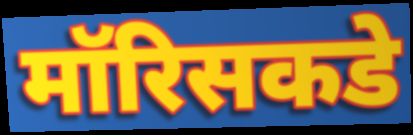
मॉरिसकडे